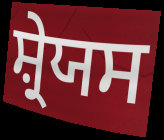
ਸ਼੍ਰੇਯਸ